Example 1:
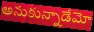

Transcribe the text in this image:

అనుకున్నాడేమో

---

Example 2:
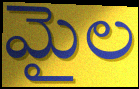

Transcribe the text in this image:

మైల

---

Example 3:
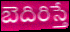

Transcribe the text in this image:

బెదిరిస్తే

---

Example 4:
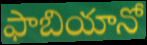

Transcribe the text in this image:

ఫాబియానో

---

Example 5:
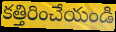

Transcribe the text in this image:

కత్తిరించేయండి